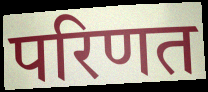
परिणत